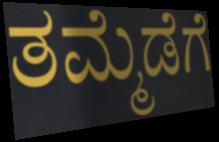
ತಮ್ಮೆಡೆಗೆ